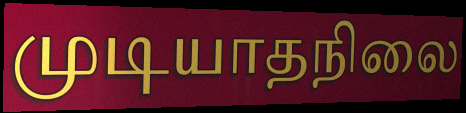
முடியாதநிலை